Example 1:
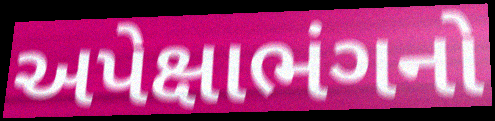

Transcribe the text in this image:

અપેક્ષાભંગનો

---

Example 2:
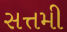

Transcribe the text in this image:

સત્તમી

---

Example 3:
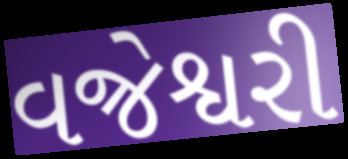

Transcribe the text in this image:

વજ્રેશ્વરી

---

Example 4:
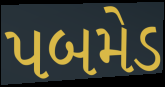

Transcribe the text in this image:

પબમેડ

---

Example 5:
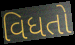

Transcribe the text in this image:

વિધતો